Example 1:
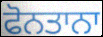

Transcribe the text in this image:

ਫੋਨਤਾਨਾ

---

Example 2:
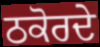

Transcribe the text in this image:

ਠਕੋਰਦੇ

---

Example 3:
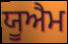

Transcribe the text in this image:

ਯੂਐਮ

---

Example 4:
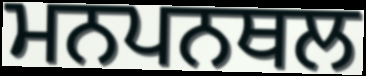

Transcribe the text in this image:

ਮਨਪਨਥਲ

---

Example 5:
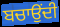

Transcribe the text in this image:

ਬਚਾਉਂਦੀ